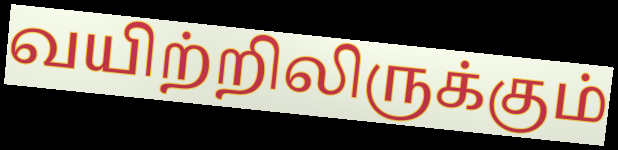
வயிற்றிலிருக்கும்